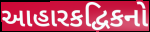
આહારકદ્વિકનો